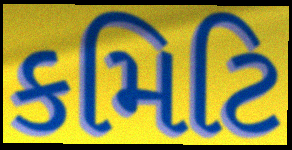
કમિટિ